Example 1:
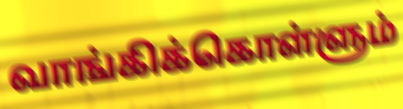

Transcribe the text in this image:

வாங்கிக்கொள்ளும்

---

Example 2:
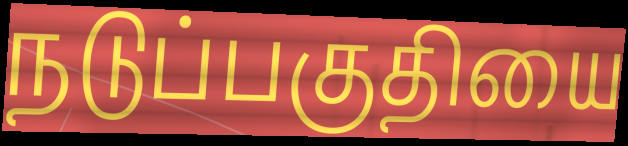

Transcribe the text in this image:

நடுப்பகுதியை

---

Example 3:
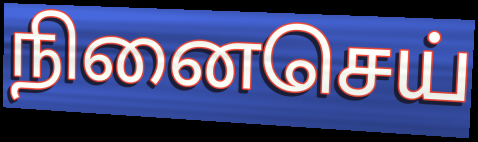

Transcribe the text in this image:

நினைசெய்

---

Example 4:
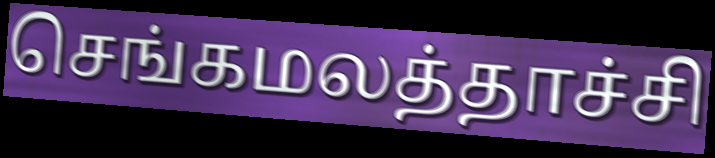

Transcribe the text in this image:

செங்கமலத்தாச்சி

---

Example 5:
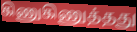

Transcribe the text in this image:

கிணுகிணுத்தது